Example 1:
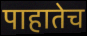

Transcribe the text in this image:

पाहातेच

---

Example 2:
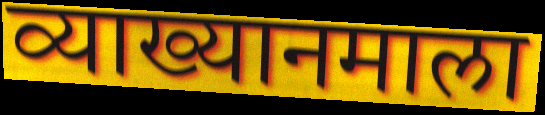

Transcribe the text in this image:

व्याख्यानमाला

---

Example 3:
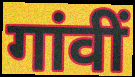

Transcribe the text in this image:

गांवीं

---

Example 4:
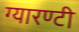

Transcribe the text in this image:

ग्यारण्टी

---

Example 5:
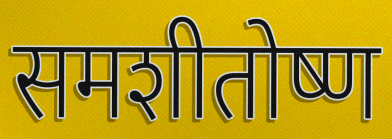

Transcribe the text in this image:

समशीतोष्ण